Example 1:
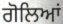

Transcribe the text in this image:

ਗੋਲਿਆਂ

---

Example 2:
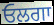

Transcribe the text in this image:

ਓਲਗਾ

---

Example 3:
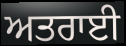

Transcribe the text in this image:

ਅਤਰਾਈ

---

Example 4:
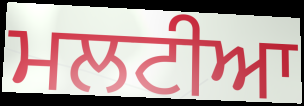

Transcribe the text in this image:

ਮਲਟੀਆ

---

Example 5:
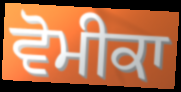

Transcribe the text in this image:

ਵੋਮੀਕਾ